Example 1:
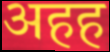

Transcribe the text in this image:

अहह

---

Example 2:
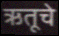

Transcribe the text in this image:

ऋतूचे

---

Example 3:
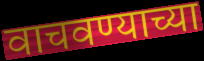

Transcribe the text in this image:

वाचवण्याच्या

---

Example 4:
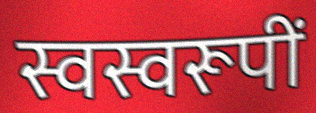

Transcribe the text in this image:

स्वस्वरूपीं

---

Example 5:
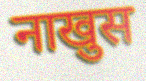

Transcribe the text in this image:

नाखुस